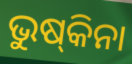
ଭୁଷ୍‌କିନା